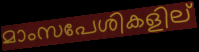
മാംസപേശികളില്